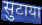
सुटाया